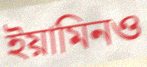
ইয়ামিনও